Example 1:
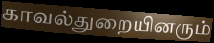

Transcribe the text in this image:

காவல்துறையினரும்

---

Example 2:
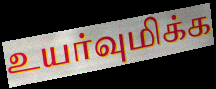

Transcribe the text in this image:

உயர்வுமிக்க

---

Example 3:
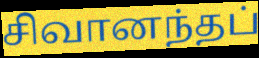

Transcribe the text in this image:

சிவானந்தப்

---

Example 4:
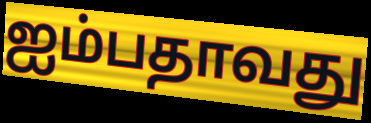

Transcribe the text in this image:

ஐம்பதாவது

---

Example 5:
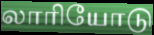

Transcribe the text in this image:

லாரியோடு